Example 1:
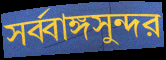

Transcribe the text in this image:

সর্ব্বাঙ্গসুন্দর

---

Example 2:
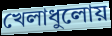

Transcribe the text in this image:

খেলাধুলোয়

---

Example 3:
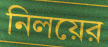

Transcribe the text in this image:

নিলয়ের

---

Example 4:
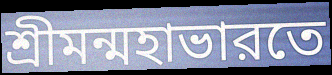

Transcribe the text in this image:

শ্রীমন্মহাভারতে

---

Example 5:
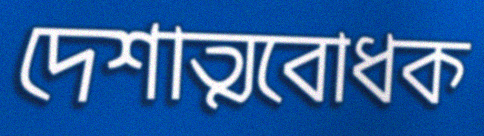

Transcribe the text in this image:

দেশাত্মবোধক